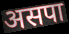
असपा